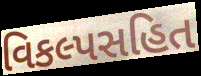
વિકલ્પસહિત